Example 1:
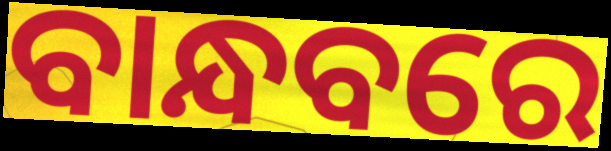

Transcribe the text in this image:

ବାନ୍ଧବରେ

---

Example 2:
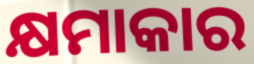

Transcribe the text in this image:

କ୍ଷମାକାର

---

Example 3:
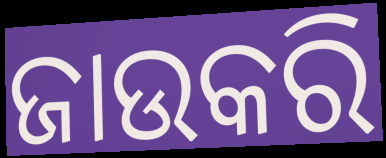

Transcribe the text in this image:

ଜାଉକରି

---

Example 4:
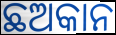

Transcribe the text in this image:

ଛଅକାନ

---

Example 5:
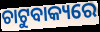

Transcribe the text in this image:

ଚାଟୁବାକ୍ୟରେ